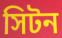
সিটন